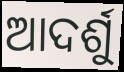
ଆଦର୍ଶୁ